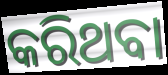
କରିଥବା